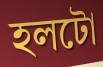
হলটো